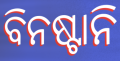
ବିନଷ୍ଟାନି